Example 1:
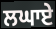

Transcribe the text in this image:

ਲਘਾਏ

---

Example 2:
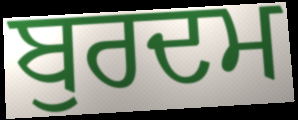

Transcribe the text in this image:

ਬੁਰਦਮ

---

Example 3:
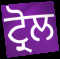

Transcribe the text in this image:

ਟ੍ਰੋਲ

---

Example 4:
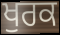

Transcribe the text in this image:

ਖੁਰਕ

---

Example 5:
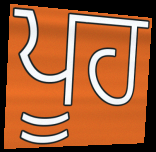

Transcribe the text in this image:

ਪੂਹ